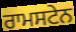
ਰਾਮਸਟੇਨ